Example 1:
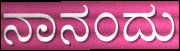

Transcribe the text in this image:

ನಾನಂದು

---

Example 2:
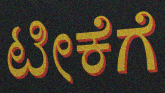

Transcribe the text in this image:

ಟೀಕೆಗೆ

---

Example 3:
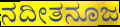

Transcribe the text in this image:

ನದೀತನೂಜ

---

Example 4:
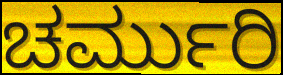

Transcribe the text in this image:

ಚರ್ಮುರಿ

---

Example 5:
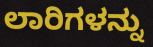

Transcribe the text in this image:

ಲಾರಿಗಳನ್ನು